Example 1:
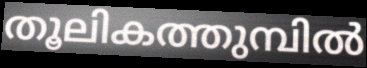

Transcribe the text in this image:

തൂലികത്തുമ്പിൽ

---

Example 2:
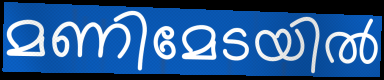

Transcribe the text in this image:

മണിമേടയിൽ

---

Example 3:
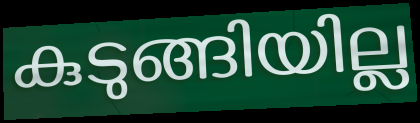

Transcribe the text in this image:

കുടുങ്ങിയില്ല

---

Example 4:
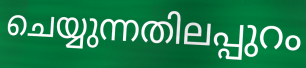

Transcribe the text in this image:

ചെയ്യുന്നതിലപ്പുറം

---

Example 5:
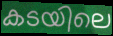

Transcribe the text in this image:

കടയിലെ